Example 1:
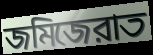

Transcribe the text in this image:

জমিজেরাত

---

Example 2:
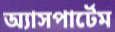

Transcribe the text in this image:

অ্যাসপার্টেম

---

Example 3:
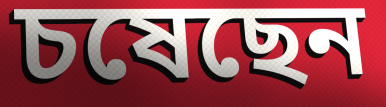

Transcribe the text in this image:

চষেছেন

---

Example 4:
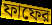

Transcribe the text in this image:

ফাফের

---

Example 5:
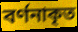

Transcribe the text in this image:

বর্ণনাকৃত